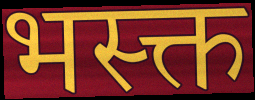
भस्क्त